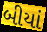
બીયાં